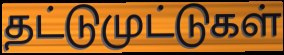
தட்டுமுட்டுகள்